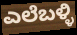
ಎಲೆಬಳ್ಳಿ